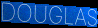
DOUGLAS